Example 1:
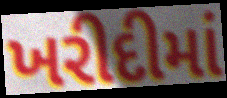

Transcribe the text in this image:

ખરીદીમાં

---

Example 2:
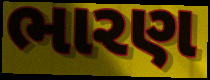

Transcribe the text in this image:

ભારણ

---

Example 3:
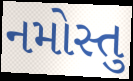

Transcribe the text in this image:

નમોસ્તુ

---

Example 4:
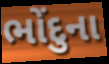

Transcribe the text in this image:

ભોંદુના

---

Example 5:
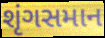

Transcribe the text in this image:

શૃંગસમાન